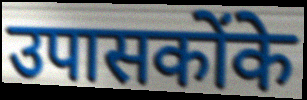
उपासकोंके